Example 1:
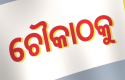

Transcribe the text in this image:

ଚୌକାଠକୁ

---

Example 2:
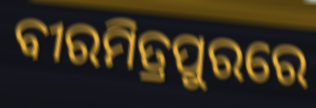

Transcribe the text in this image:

ବୀରମିତ୍ରପୁରରେ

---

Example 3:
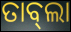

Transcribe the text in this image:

ତାବ୍‌ଲା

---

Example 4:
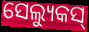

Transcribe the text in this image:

ସେଲ୍ୟୁକସ୍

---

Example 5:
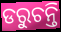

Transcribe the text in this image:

ଡରୁଚନ୍ତି